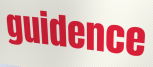
guidence